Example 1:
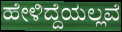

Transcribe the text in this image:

ಹೇಳಿದ್ದೆಯಲ್ಲವೆ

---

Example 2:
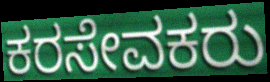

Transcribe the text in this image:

ಕರಸೇವಕರು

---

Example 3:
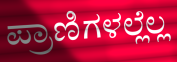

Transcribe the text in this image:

ಪ್ರಾಣಿಗಳಲ್ಲೆಲ್ಲ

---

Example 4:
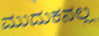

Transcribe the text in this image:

ಮುದುಕನಲ್ಲ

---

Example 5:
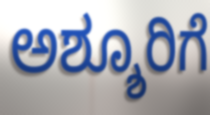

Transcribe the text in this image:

ಅಶ್ಶೂರಿಗೆ